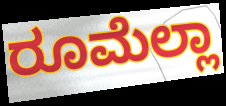
ರೂಮೆಲ್ಲಾ